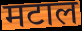
मटाल